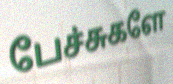
பேச்சுகளே